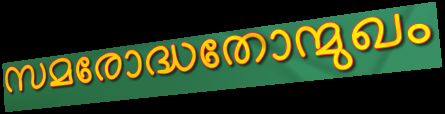
സമരോദ്ധതോന്മുഖം